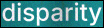
disparity